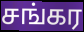
சங்கர